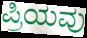
ಪ್ರಿಯವು